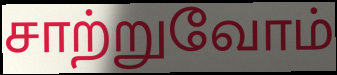
சாற்றுவோம்